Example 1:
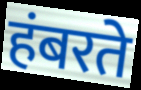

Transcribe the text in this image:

हंबरते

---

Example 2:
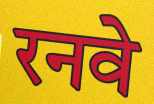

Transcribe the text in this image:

रनवे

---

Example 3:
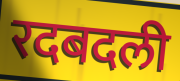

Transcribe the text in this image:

रदबदली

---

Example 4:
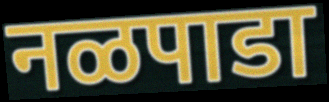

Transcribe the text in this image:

नळपाडा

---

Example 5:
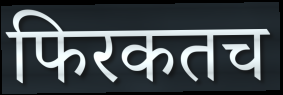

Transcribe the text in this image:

फिरकतच